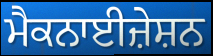
ਮੈਕਨਾਈਜ਼ੇਸ਼ਨ